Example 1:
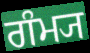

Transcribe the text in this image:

ਗੰਮ੍ਯ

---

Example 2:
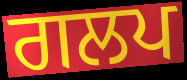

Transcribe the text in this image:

ਗਲਪ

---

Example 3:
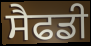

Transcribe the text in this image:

ਸੈਫਡੀ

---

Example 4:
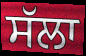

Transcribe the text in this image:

ਸੱਲਾ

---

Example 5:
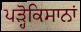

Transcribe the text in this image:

ਪੜ੍ਹੋਕਿਸਾਨਾਂ